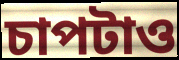
চাপটাও